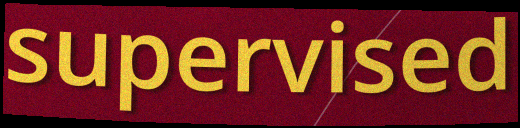
supervised